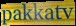
pakkatv